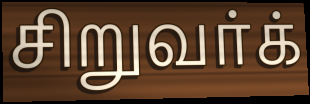
சிறுவர்க்